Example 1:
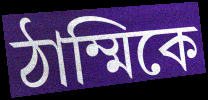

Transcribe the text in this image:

ঠাম্মিকে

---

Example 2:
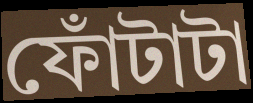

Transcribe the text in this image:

ফোঁটাটা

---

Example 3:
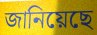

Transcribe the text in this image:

জানিয়েছে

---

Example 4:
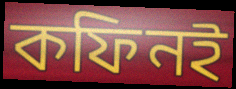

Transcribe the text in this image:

কফিনই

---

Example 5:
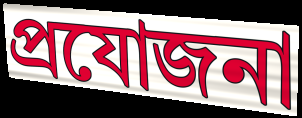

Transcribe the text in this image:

প্রযোজনা